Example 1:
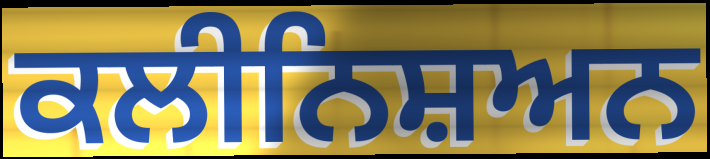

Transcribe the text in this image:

ਕਲੀਨਿਸ਼ਅਨ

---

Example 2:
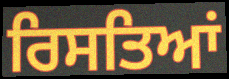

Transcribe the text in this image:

ਰਿਸਤਿਆਂ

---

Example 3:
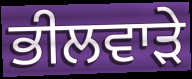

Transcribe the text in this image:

ਭੀਲਵਾੜੇ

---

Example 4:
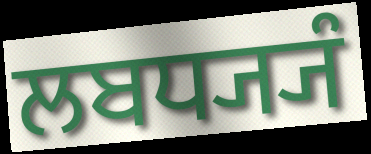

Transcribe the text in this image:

ਲਬਧ੍ਯ੍ਯੰ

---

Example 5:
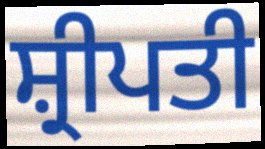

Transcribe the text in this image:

ਸ਼੍ਰੀਪਤੀ